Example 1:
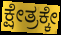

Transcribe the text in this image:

ಕ್ಷೇತ್ರಕ್ಕೇ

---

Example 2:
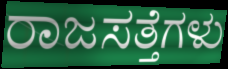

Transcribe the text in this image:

ರಾಜಸತ್ತೆಗಳು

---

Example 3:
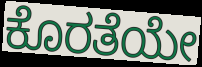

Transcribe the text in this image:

ಕೊರತೆಯೇ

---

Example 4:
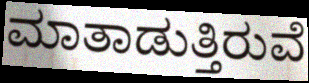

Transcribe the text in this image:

ಮಾತಾಡುತ್ತಿರುವೆ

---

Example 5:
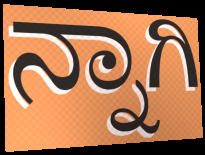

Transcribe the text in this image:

ನ್ನಾಗಿ